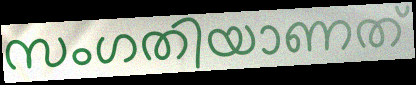
സംഗതിയാണത്